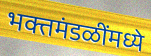
भक्तमंडळींमध्ये